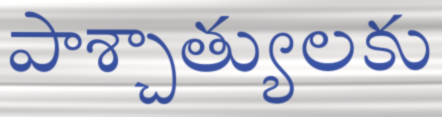
పాశ్చాత్యులకు